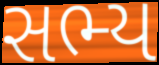
સભ્ય